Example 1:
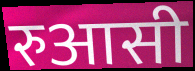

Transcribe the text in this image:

रुआसी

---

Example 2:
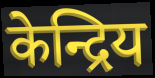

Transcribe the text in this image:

केन्द्रिय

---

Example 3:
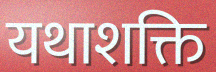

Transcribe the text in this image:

यथाशक्ति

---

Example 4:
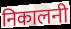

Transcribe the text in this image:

निकालनी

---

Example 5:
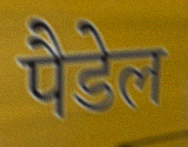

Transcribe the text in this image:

पैडेल